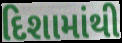
દિશામાંથી